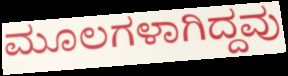
ಮೂಲಗಳಾಗಿದ್ದವು